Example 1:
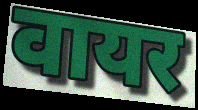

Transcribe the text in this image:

वायर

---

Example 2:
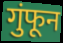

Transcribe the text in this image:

गुंफून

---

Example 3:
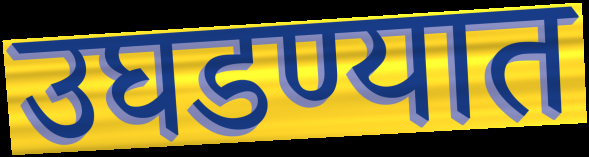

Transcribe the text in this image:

उघडण्यात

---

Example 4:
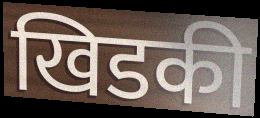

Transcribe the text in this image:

खिडकी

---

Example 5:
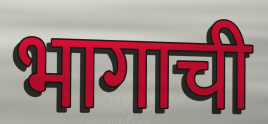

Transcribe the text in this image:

भागाची